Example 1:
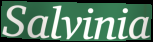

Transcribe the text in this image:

Salvinia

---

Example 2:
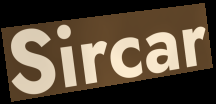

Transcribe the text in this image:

Sircar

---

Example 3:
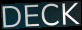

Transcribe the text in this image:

DECK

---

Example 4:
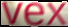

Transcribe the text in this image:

vex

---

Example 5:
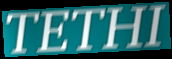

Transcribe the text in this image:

TETHI